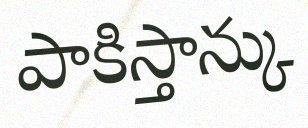
పాకిస్తాన్కు